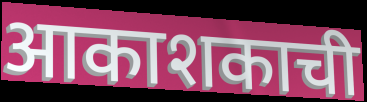
आकाशकाची